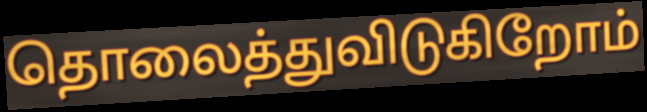
தொலைத்துவிடுகிறோம்